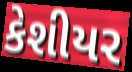
કેશીયર